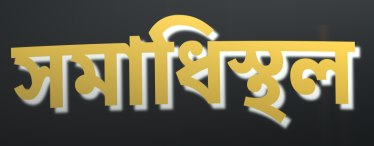
সমাধিস্থল